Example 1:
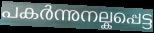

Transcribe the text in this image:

പകർന്നുനല്കപ്പെട്ട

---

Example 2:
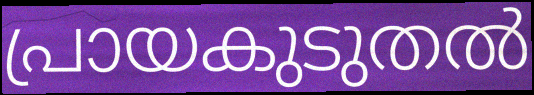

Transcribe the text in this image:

പ്രായകുടുതൽ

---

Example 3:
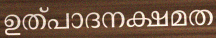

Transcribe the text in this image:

ഉത്പാദനക്ഷമത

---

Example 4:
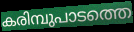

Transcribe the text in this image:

കരിമ്പുപാടത്തെ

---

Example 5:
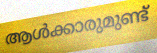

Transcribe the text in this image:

ആൾക്കാരുമുണ്ട്